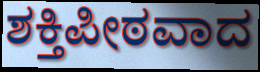
ಶಕ್ತಿಪೀಠವಾದ